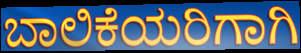
ಬಾಲಿಕೆಯರಿಗಾಗಿ